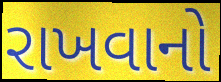
રાખવાનો